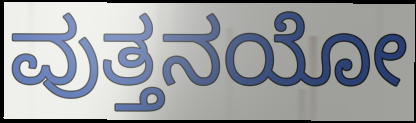
ವುತ್ತನಯೋ